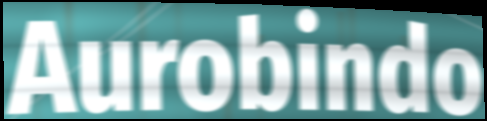
Aurobindo